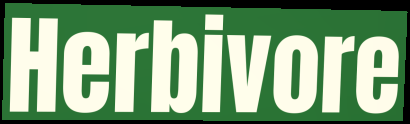
Herbivore